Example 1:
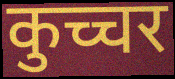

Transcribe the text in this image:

कुच्चर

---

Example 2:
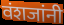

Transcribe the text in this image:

वंशजांनी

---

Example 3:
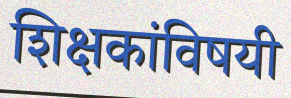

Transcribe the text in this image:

शिक्षकांविषयी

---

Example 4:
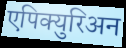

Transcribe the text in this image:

एपिक्युरिअन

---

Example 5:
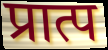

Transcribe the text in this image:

प्रात्प